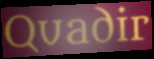
Quadir